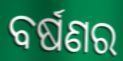
ବର୍ଷଣର